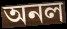
অনল